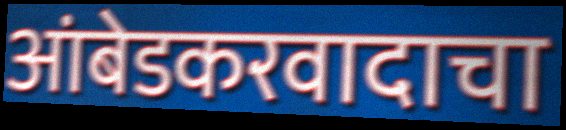
आंबेडकरवादाचा